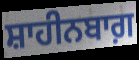
ਸ਼ਾਹੀਨਬਾਗ਼